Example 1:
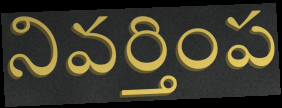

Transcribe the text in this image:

నివర్తింప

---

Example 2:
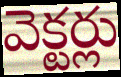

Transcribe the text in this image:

వెక్టర్లు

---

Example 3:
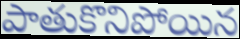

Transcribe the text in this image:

పాతుకొనిపోయిన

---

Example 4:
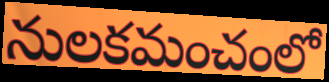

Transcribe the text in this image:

నులకమంచంలో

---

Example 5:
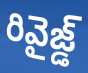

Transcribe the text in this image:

రివైజ్డ్